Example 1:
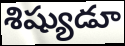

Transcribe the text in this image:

శిష్యుడూ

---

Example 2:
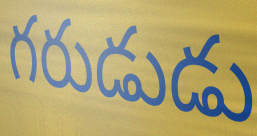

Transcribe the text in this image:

గరుడుడు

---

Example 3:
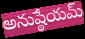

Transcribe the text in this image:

అనుష్ఠేయమ్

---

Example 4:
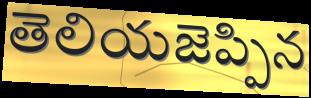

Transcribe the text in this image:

తెలియజెప్పిన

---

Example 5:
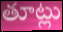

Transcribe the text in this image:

తూట్లు